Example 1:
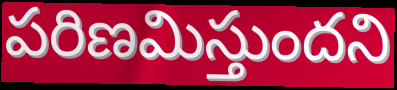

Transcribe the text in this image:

పరిణమిస్తుందని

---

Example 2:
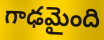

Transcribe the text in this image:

గాఢమైంది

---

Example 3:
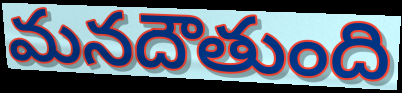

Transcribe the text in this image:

మనదౌతుంది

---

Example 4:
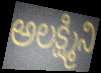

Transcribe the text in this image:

అలక్ష్మిని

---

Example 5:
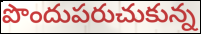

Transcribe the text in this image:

పొందుపరుచుకున్న